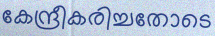
കേന്ദ്രീകരിച്ചതോടെ